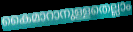
കൈമാറാനുള്ളതെല്ലാം